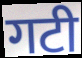
गटी